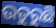
ଉତୁରୁଛି